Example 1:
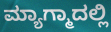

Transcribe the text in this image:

ಮ್ಯಾಗ್ಮಾದಲ್ಲಿ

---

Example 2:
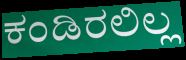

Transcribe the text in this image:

ಕಂಡಿರಲಿಲ್ಲ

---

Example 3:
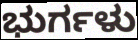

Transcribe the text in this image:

ಭುರ್ಗಳು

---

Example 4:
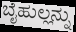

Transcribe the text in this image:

ಬೈಹುಲ್ಲನ್ನು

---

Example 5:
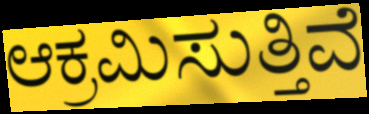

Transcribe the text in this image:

ಆಕ್ರಮಿಸುತ್ತಿವೆ